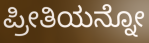
ಪ್ರೀತಿಯನ್ನೋ